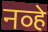
नव्हे